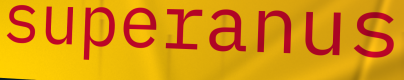
superanus